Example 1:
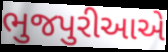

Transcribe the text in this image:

ભુજપુરીઆએ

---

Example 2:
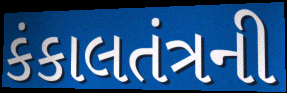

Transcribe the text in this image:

કંકાલતંત્રની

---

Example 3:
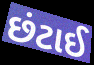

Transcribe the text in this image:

છંટાઈ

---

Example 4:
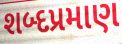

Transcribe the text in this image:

શબ્દપ્રમાણ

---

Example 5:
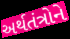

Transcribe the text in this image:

અર્થતંત્રોને